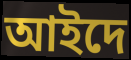
আইদে